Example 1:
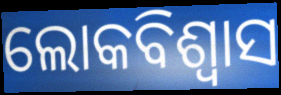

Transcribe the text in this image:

ଲୋକବିଶ୍ୱାସ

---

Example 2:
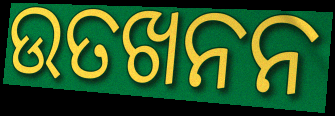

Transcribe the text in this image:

ଉତଖନନ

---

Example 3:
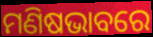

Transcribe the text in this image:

ମଣିଷଭାବରେ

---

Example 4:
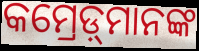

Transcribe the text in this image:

କମ୍ରେଡ଼୍‍ମାନଙ୍କ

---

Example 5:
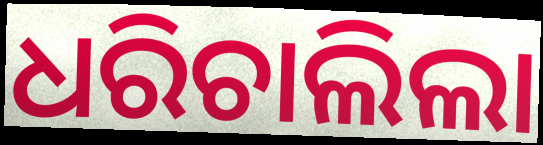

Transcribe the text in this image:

ଧରିଚାଲିଲା